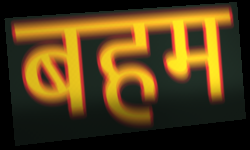
बहम